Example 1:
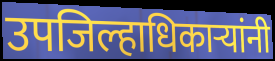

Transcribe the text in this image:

उपजिल्हाधिकाऱ्यांनी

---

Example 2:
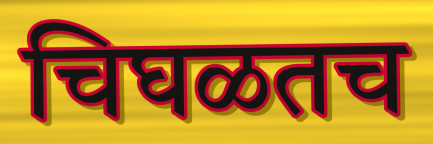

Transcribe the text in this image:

चिघळतच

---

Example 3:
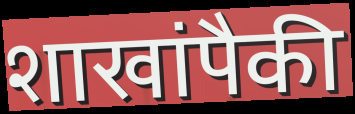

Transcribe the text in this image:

शाखांपैकी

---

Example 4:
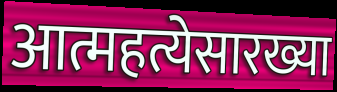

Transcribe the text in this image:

आत्महत्येसारख्या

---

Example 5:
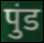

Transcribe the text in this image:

पुंड